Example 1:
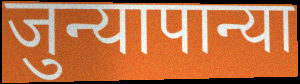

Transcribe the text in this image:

जुन्यापान्या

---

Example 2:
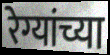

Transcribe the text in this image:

रेग्यांच्या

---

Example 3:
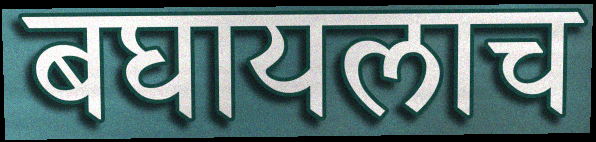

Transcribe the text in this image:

बघायलाच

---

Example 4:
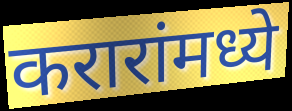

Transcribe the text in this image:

करारांमध्ये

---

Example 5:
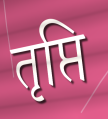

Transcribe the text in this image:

तृप्ति